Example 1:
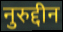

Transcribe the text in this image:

नुरुद्दीन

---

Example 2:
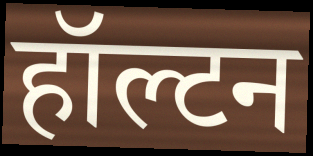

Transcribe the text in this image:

हॉल्टन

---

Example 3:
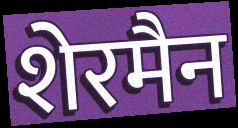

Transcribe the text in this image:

शेरमैन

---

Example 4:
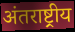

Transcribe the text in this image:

अंतराष्ट्रीय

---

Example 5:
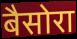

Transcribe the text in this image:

बैसोरा